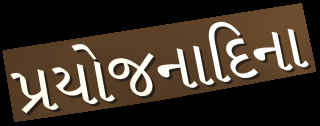
પ્રયોજનાદિના